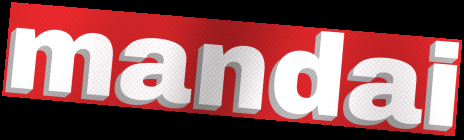
mandai